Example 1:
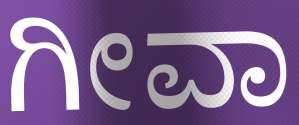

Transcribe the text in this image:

ಗೀವಾ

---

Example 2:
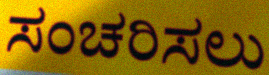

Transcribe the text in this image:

ಸಂಚರಿಸಲು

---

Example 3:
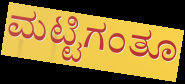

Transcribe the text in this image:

ಮಟ್ಟಿಗಂತೂ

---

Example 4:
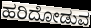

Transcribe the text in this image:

ಹರಿದೋಡುವ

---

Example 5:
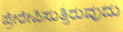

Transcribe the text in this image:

ಪ್ರೇರೇಪಿಸುತ್ತಿರುವುದು